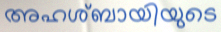
അഹശ്ബായിയുടെ